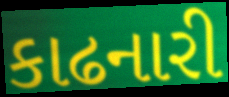
કાઢનારી